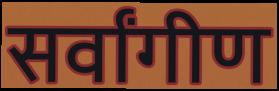
सर्वांगीण